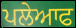
ਪਲੇਆਫ